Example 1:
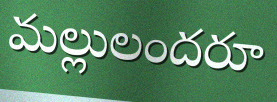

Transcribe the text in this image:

మల్లులందరూ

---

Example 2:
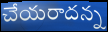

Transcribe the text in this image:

చేయరాదన్న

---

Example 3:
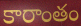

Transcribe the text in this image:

కారాంతం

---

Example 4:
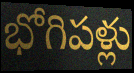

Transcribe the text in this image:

భోగిపళ్లు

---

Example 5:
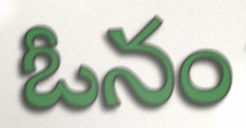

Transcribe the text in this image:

ఓనం